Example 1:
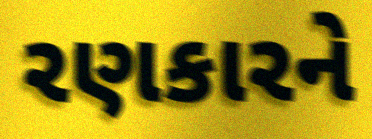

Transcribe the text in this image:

રણકારને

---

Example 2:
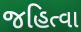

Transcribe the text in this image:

જહિત્વા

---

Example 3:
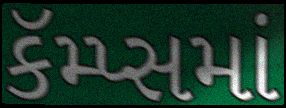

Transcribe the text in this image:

કૅમ્પ્સમાં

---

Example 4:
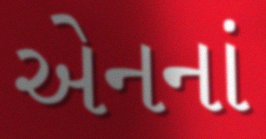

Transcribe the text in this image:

એનનાં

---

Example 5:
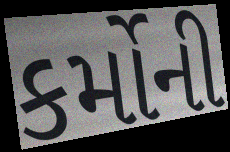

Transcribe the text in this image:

કર્મોની